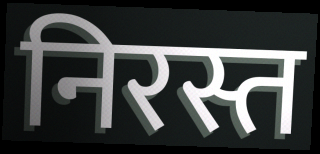
निरस्त